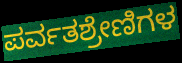
ಪರ್ವತಶ್ರೇಣಿಗಳ